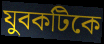
যুবকটিকে